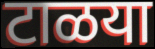
टाळया